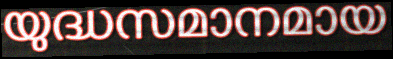
യുദ്ധസമാനമായ